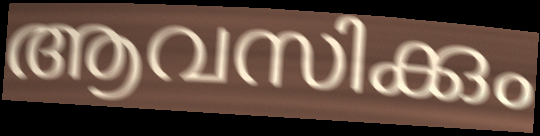
ആവസിക്കും